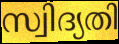
സ്വിദ്യതി